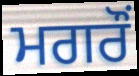
ਮਗਰੌਂ